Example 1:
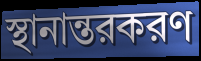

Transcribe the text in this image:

স্থানান্তরকরণ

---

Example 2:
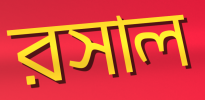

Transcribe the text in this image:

রসাল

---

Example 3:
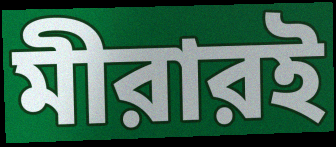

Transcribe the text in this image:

মীরারই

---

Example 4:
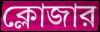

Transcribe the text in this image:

ক্লোজার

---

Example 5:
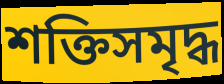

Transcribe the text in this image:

শক্তিসমৃদ্ধ